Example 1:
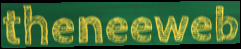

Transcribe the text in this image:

theneeweb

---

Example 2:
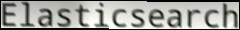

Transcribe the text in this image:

Elasticsearch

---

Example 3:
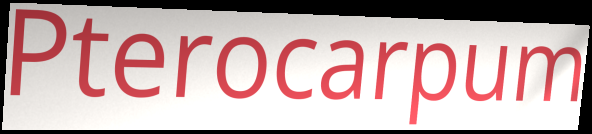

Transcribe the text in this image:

Pterocarpum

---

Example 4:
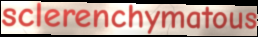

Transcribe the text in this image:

sclerenchymatous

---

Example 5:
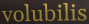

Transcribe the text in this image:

volubilis